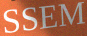
SSEM